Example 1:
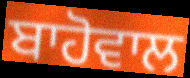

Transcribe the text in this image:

ਬਾਹੋਵਾਲ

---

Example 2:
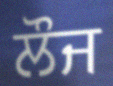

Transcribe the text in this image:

ਲੌਜ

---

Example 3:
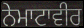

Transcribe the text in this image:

ਨੇਮਾਟਾਵੀਰ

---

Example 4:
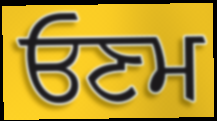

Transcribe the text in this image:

ਓਣਮ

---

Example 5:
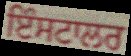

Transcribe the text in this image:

ਇੰਸਟਾਲਰ